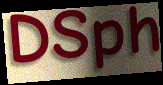
DSph